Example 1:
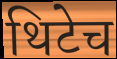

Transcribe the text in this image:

थिटेच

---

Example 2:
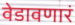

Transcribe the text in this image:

वेडावणारं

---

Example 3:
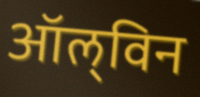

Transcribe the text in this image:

ऑल्विन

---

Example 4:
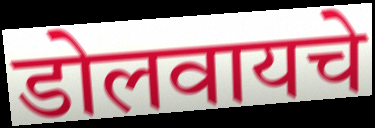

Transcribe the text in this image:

डोलवायचे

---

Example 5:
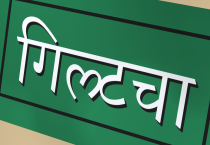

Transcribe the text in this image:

गिल्टचा